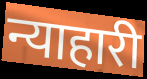
न्याहारी